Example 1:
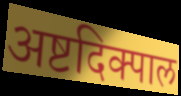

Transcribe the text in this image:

अष्टदिक्पाल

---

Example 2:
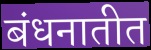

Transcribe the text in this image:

बंधनातीत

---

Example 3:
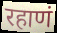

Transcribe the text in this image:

रहाणं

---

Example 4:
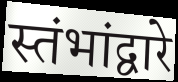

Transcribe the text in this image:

स्तंभांद्वारे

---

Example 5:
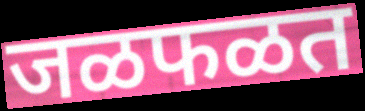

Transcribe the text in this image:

जळफळत